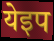
येइप